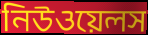
নিউওয়েলস